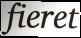
fieret